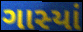
ગાસ્યાં